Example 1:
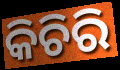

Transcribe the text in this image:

କିଚିରି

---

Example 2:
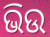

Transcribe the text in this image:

ଭିଉ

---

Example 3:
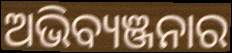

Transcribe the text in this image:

ଅଭିବ୍ୟଞ୍ଜନାର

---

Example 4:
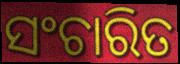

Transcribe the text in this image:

ସଂଚାରିତ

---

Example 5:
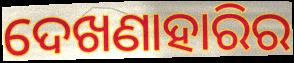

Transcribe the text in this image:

ଦେଖଣାହାରିର